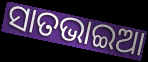
ସାତଭାଇଆ